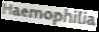
Haemophilia